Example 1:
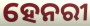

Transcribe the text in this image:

ହେନରୀ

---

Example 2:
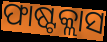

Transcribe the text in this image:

ଫାଷ୍ଟକ୍ଲାସ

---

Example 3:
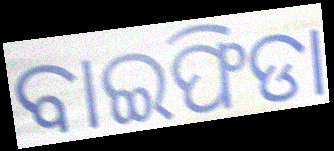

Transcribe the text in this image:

ବାଇଫିଡା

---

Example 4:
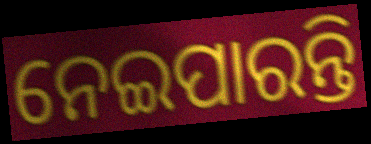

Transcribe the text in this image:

ନେଇପାରନ୍ତି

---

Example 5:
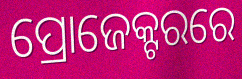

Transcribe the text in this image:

ପ୍ରୋଜେକ୍ଟରରେ